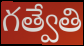
గత్వేతి